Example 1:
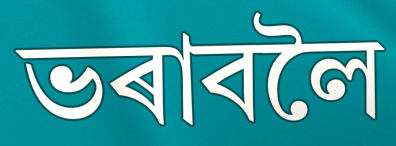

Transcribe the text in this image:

ভৰাবলৈ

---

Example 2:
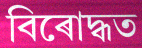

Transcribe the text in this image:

বিৰোদ্ধত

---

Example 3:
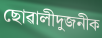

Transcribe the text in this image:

ছোৱালীদুজনীক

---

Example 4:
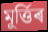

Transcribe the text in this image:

মূৰ্ত্তিৰ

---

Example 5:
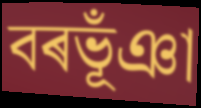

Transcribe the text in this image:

বৰভূঁঞা